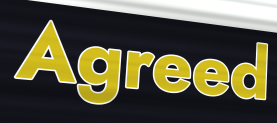
Agreed